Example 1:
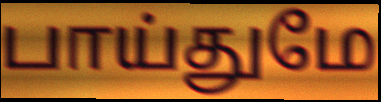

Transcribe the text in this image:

பாய்துமே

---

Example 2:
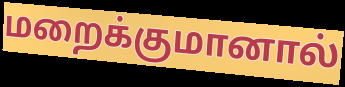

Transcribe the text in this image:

மறைக்குமானால்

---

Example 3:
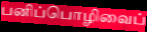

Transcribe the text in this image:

பனிப்பொழிவைப்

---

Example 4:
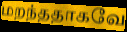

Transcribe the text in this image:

மறந்ததாகவே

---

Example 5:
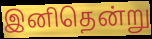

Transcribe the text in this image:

இனிதென்று